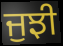
ਜੁਝੀ